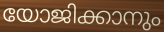
യോജിക്കാനും